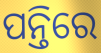
ପନ୍ତିରେ